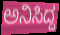
ಅನಿಸಿದ್ದ